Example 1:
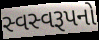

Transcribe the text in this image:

સ્વસ્વરૂપનો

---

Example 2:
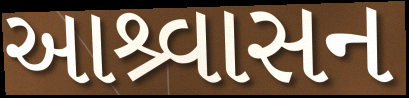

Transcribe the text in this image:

આશ્ર્વાસન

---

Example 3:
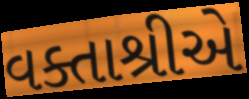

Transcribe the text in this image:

વક્તાશ્રીએ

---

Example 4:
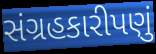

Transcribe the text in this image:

સંગ્રહકારીપણું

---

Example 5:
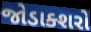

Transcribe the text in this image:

જોડાક્શરો